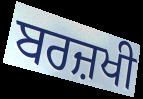
ਬਰਜ਼ਖੀ